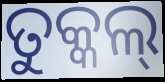
ତୁକ୍କଲ୍